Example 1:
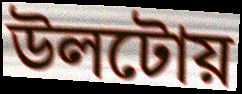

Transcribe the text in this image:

উলটোয়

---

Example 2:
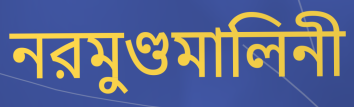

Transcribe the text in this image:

নরমুণ্ডমালিনী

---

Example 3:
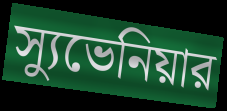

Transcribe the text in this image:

স্যুভেনিয়ার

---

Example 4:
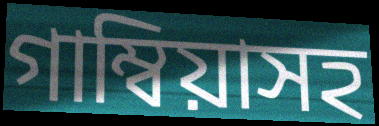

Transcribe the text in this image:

গাম্বিয়াসহ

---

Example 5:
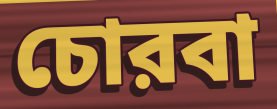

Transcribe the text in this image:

চোরবা